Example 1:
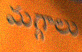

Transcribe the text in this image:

మగ్గాలు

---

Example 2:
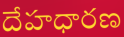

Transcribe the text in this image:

దేహధారణ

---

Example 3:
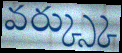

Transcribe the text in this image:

వర్క్స్కు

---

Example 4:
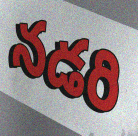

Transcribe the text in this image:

నడరి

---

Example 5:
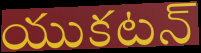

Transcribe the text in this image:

యుకటన్